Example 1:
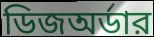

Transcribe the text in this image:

ডিজঅর্ডার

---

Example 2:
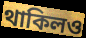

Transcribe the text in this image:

থাকিলও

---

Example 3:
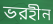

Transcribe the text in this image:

ভরহীন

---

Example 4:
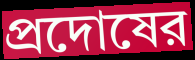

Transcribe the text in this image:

প্রদোষের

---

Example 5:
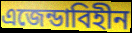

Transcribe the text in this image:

এজেন্ডাবিহীন